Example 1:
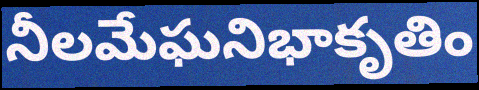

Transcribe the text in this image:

నీలమేఘనిభాకృతిం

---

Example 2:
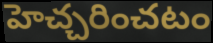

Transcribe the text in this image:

హెచ్చరించటం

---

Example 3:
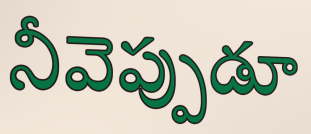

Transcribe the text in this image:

నీవెప్పుడూ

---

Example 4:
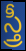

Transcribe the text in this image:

స్త్రీ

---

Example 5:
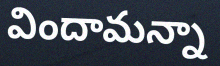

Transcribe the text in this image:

విందామన్నా